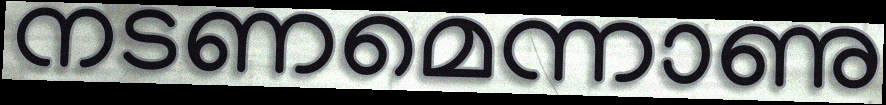
നടണമെന്നാണു